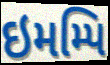
ઇમમ્પિ